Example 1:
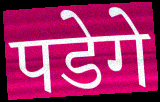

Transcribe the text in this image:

पडेगे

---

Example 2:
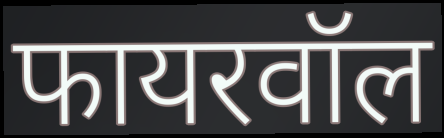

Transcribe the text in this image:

फायरवॉल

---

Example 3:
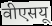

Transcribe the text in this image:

वीएसयू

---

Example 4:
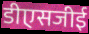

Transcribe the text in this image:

डीएसजीई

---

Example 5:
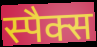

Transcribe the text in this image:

स्पैक्स